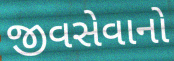
જીવસેવાનો